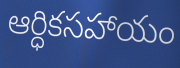
ఆర్ధికసహాయం